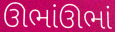
ઊભાંઊભાં